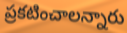
ప్రకటించాలన్నారు